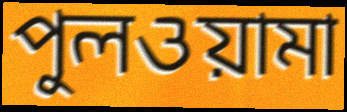
পুলওয়ামা